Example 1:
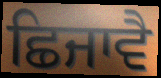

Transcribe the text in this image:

ਛਿਜਾਵੈ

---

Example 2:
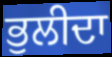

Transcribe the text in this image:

ਭੁਲੀਦਾ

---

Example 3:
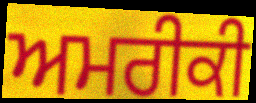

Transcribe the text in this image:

ਅਮਰੀਕੀ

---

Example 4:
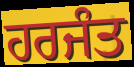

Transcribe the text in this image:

ਹਰਜੰਤ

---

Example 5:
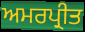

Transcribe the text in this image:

ਅਮਰਪ੍ਰੀਤ